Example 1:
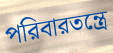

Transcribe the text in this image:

পরিবারতন্ত্রে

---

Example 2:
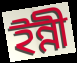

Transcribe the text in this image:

ইন্নী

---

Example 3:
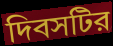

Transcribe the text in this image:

দিবসটির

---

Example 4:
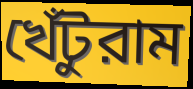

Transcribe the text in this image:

খেঁটুরাম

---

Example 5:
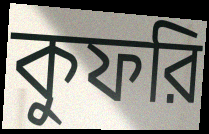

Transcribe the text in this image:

কুফরি